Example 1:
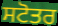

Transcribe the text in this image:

ਸਟੋਤਰ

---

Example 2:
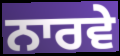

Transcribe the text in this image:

ਨਾਰਵੇ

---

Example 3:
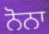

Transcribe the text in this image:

ਨੋਨਾ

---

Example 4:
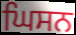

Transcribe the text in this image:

ਘਿਸਨ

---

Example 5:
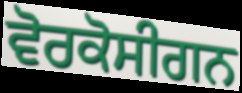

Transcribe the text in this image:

ਵੋਰਕੋਸੀਗਨ